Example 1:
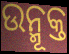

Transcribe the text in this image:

ଉନ୍ମୂକ୍ତ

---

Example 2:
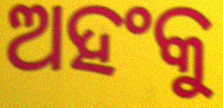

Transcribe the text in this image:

ଅହଂକୁ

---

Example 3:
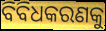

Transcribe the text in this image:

ବିବିଧକରଣକୁ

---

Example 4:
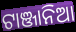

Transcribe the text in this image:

ଟାଞ୍ଜାନିଆ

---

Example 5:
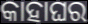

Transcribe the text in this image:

କାହାଘର